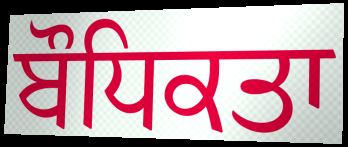
ਬੌਧਿਕਤਾ